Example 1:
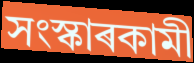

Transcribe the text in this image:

সংস্কাৰকামী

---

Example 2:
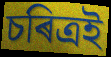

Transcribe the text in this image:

চৰিত্ৰই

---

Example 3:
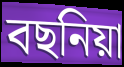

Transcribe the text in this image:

বছনিয়া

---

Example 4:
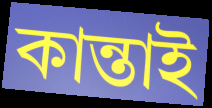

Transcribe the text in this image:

কান্তাই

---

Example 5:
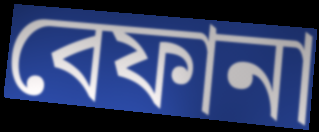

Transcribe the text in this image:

বেফানা